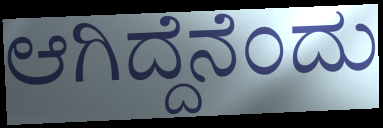
ಆಗಿದ್ದೆನೆಂದು